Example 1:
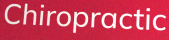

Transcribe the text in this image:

Chiropractic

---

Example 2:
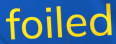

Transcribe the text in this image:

foiled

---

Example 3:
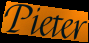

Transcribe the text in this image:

Pieter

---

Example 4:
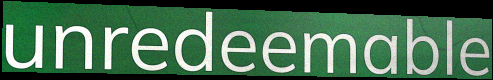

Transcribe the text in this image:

unredeemable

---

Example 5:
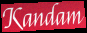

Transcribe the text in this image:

Kandam